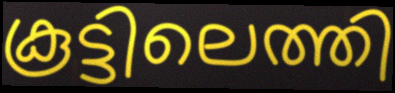
കൂട്ടിലെത്തി